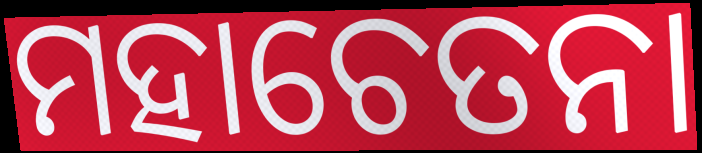
ମହାଚେତନା